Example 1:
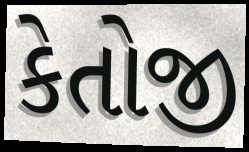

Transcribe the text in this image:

કેતોજી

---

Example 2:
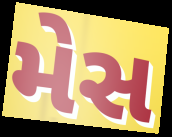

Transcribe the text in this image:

મેસ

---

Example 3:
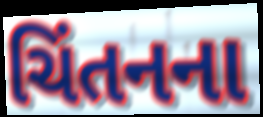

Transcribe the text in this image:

ચિંતનના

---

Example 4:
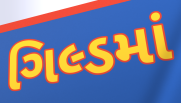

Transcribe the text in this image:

ગિલ્ડમાં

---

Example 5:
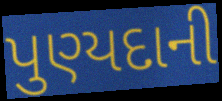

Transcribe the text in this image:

પુણ્યદાની